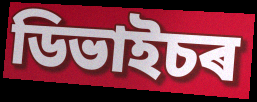
ডিভাইচৰ